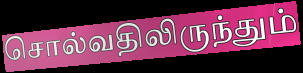
சொல்வதிலிருந்தும்